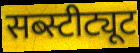
सब्स्टीट्यूट